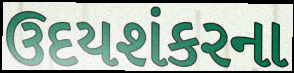
ઉદયશંકરના